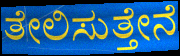
ತೇಲಿಸುತ್ತೇನೆ